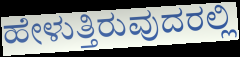
ಹೇಳುತ್ತಿರುವುದರಲ್ಲಿ